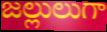
జల్లులుగా